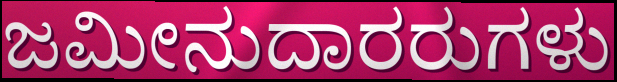
ಜಮೀನುದಾರರುಗಳು